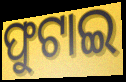
ଫୁଟାଇ